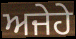
ਅਜੇਹੇ